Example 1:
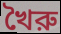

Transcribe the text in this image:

খৈরু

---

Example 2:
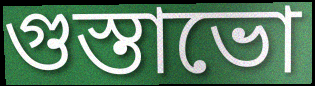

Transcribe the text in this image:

গুস্তাভো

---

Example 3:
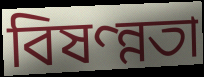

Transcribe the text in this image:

বিষণ্ন্নতা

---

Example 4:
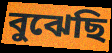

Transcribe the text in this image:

বুঝেছি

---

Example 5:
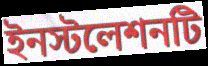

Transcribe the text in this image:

ইনস্টলেশনটি